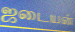
ஜடையன்